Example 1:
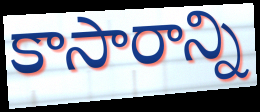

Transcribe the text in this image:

కాసారాన్ని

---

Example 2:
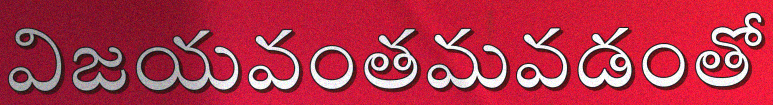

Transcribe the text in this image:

విజయవంతమవడంతో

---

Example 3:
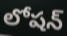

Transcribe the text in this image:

లోషన్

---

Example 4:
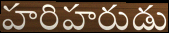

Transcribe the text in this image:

హరిహరుడు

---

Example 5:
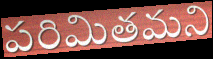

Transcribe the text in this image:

పరిమితమని